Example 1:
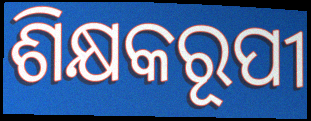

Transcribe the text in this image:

ଶିକ୍ଷକରୂପୀ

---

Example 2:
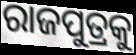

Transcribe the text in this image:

ରାଜପୁତ୍ରକୁ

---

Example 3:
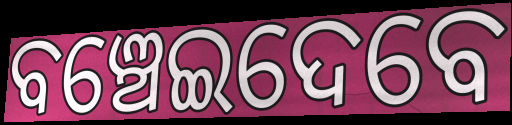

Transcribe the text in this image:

ବଞ୍ଚେଇଦେବେ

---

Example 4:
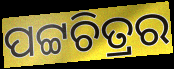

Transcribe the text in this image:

ପଟ୍ଟଚିତ୍ରର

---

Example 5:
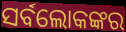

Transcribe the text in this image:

ସର୍ବଲୋକଙ୍କର